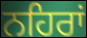
ਨਹਿਰਾਂ